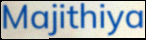
Majithiya